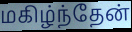
மகிழ்ந்தேன்